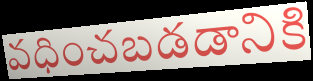
వధించబడడానికి